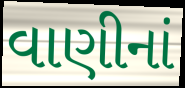
વાણીનાં